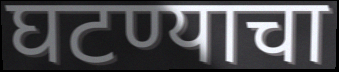
घटण्याचा